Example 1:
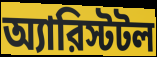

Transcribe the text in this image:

অ্যারিস্টটল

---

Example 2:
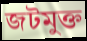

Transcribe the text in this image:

জটমুক্ত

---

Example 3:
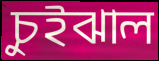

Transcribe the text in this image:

চুইঝাল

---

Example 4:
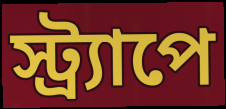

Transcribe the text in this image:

স্ট্র্যাপে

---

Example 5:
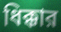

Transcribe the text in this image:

ধিক্কার